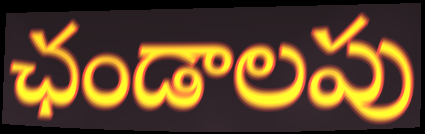
ఛండాలపు